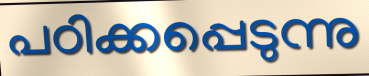
പഠിക്കപ്പെടുന്നു